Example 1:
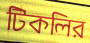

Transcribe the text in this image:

টিকলির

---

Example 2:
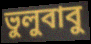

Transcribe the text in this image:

ভুলুবাবু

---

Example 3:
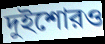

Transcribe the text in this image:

দুইশোরও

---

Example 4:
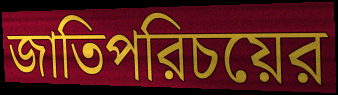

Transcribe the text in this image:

জাতিপরিচয়ের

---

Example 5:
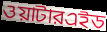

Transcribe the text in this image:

ওয়াটারএইড